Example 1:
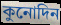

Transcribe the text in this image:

কুনোদিন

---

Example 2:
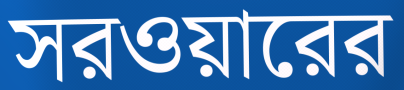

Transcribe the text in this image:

সরওয়ারের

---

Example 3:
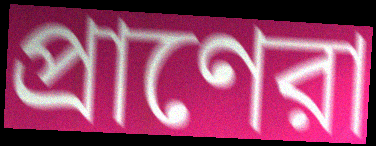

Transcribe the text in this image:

প্রাণেরা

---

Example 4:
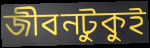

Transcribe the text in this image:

জীবনটুকুই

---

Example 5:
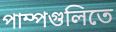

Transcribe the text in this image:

পাম্পগুলিতে